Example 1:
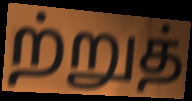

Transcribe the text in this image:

ற்றுத்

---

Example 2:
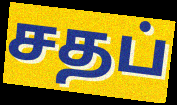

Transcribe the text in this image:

சதப்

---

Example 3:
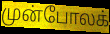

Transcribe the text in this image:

முன்போலக்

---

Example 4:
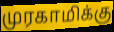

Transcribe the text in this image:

முரகாமிக்கு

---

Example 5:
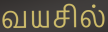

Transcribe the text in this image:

வயசில்